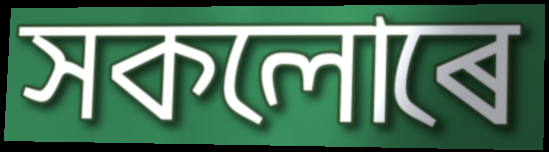
সকলোৰে